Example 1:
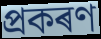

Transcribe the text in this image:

প্ৰকৰণ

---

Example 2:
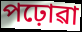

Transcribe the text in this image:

পঢ়োৱা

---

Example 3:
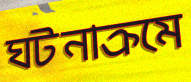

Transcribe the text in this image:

ঘটনাক্ৰমে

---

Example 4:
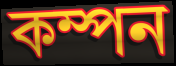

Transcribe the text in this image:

কম্পন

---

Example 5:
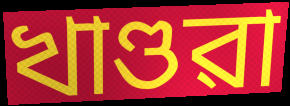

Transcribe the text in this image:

খাণ্ডৱা